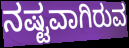
ನಷ್ಟವಾಗಿರುವ